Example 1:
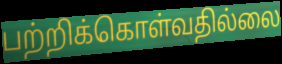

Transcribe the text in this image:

பற்றிக்கொள்வதில்லை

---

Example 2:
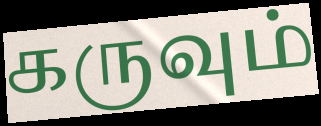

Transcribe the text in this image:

கருவும்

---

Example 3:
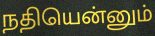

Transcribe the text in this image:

நதியென்னும்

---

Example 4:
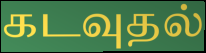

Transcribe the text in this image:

கடவுதல்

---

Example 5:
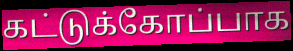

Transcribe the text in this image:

கட்டுக்கோப்பாக